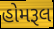
હોમરૂલ